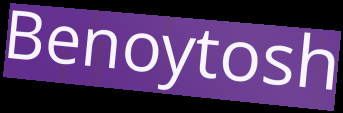
Benoytosh